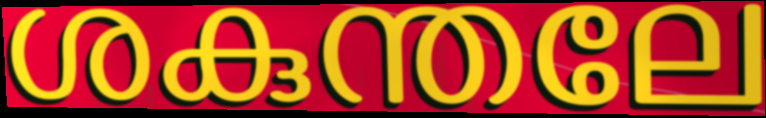
ശകുന്തലേ